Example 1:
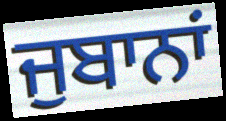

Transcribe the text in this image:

ਜੁਬਾਨਾਂ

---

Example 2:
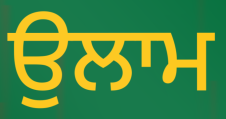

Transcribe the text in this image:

ਉਲਾਮ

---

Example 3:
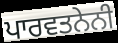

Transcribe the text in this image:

ਪਾਰਵਤਨੇਨੀ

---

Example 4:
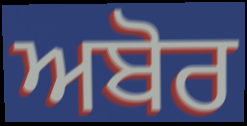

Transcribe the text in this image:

ਅਬੋਰ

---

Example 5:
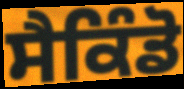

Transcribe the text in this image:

ਸੈਕਿੰਡੋ